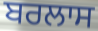
ਬਰਲਾਸ